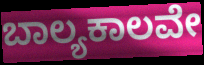
ಬಾಲ್ಯಕಾಲವೇ